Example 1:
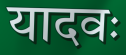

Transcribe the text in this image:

यादवः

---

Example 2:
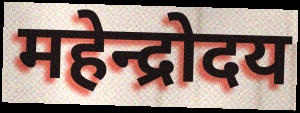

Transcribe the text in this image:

महेन्द्रोदय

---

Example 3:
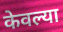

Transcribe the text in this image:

केवल्या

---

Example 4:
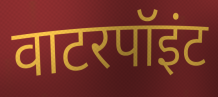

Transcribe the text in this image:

वाटरपॉइंट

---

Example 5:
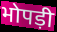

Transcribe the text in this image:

भोपड़ी